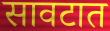
सावटात